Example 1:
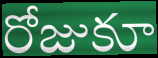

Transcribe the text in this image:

రోజుకూ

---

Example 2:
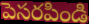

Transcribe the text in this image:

పెసరపిండి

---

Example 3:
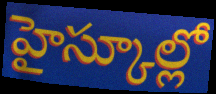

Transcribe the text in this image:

హైస్కూల్లో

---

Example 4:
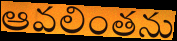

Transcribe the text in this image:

ఆవలింతను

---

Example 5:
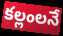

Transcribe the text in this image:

కల్లంలనే